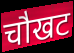
चौखट